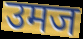
उमज